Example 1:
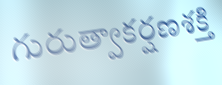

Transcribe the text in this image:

గురుత్వాకర్షణశక్తి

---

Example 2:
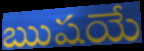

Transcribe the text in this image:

ఋషయే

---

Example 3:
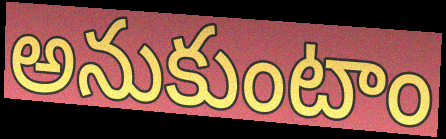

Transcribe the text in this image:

అనుకుంటాం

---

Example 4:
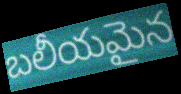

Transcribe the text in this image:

బలీయమైన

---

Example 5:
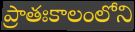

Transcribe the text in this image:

ప్రాతఃకాలంలోని